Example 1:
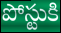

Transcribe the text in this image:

పోస్టుకి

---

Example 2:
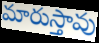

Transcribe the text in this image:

మారుస్తావు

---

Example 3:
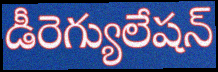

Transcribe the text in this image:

డీరెగ్యులేషన్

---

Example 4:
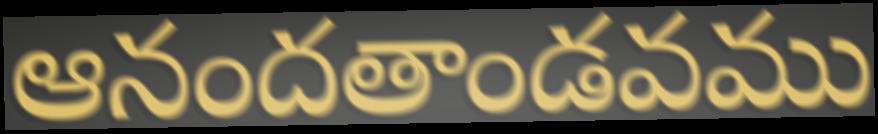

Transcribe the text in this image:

ఆనందతాండవము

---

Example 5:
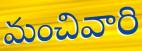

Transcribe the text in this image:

మంచివారి